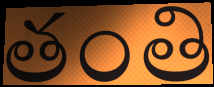
తంతి